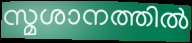
സ്മശാനത്തിൽ